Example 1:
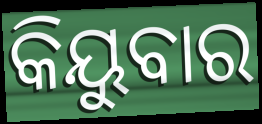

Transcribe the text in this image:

କିୟୁବାର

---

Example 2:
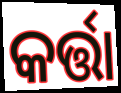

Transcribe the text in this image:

କର୍ତ୍ତା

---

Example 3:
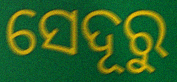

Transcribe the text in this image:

ସେଦୂରୁ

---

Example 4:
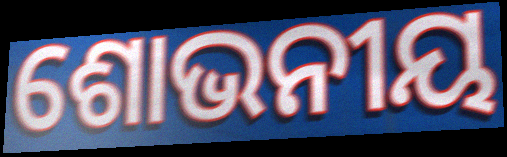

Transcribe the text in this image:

ଶୋଭନୀୟ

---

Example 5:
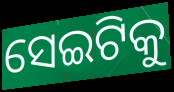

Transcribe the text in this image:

ସେଇଟିକୁ